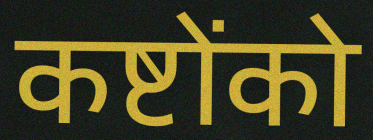
कष्टोंको